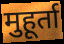
मुहूर्ता